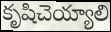
కృషిచెయ్యాలి